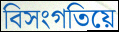
বিসংগতিয়ে